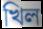
খিল